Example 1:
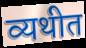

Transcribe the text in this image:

व्यथीत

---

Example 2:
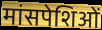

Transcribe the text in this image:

मांसपेशिओं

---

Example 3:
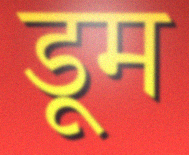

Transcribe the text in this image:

डूम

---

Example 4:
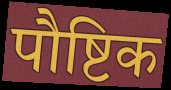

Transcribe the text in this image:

पौष्टिक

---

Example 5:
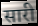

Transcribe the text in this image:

सारी